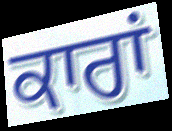
ਕਾਰਾਂ